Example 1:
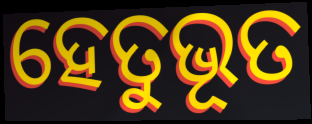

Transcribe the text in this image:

ହେତୁଭୂତ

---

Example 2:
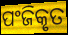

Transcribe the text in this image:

ପଂଜିକୃତ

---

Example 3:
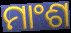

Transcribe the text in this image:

ମାଂଶ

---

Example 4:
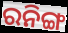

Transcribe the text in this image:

ରନିଙ୍ଗ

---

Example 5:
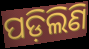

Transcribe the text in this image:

ପଡ଼ିଲିଣି